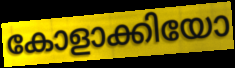
കോളാക്കിയോ